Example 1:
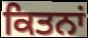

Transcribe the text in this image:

ਕਿਤਨਾਂ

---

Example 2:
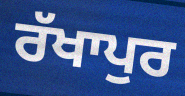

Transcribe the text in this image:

ਰੱਖਾਪੁਰ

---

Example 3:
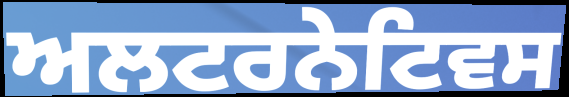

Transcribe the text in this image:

ਅਲਟਰਨੇਟਿਵਸ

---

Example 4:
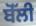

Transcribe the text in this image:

ਬੋੱਲੀ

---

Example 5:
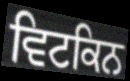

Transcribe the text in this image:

ਵਿਟਕਿਨ